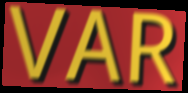
VAR